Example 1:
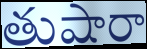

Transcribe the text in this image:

తుషారా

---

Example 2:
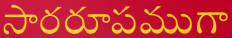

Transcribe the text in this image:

సారరూపముగా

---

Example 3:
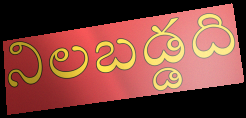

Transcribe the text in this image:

నిలబడ్డది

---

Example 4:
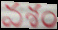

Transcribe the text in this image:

వశం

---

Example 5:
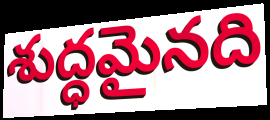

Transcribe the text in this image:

శుద్ధమైనది